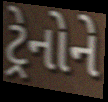
ટ્રેનોને